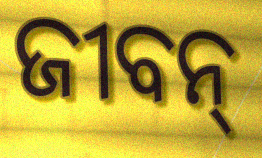
ଜୀବନ୍